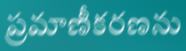
ప్రమాణీకరణను